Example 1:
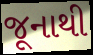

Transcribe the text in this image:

જૂનાથી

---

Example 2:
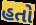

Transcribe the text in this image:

હતો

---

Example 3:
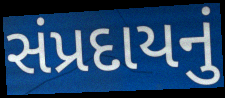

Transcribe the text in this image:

સંપ્રદાયનું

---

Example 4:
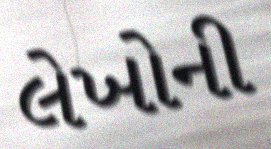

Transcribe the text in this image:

લેખોની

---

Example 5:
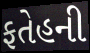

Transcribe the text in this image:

ફતેહની